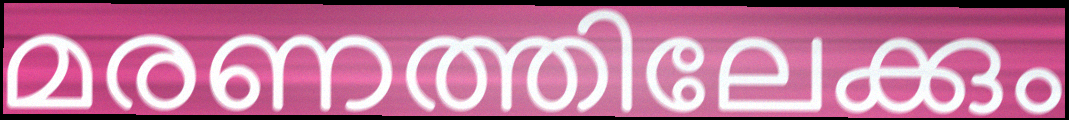
മരണത്തിലേക്കും